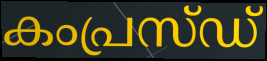
കംപ്രസ്ഡ്